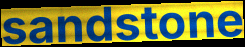
sandstone